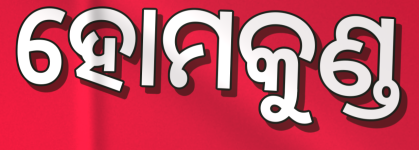
ହୋମକୁଣ୍ଡ